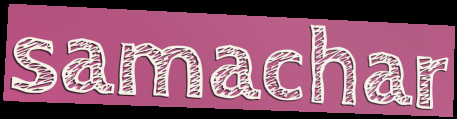
samachar